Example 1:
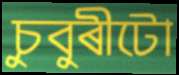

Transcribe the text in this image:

চুবুৰীটো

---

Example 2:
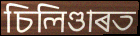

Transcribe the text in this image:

চিলিণ্ডাৰত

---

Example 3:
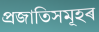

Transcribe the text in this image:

প্ৰজাতিসমূহৰ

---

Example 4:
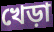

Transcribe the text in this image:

খেড়া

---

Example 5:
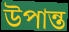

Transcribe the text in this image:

উপান্ত